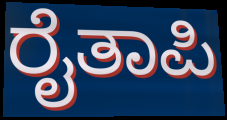
ರೈತಾಪಿ